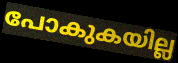
പോകുകയില്ല